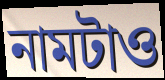
নামটাও